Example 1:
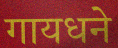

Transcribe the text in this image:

गायधने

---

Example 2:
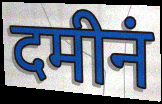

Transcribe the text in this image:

दमीनं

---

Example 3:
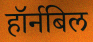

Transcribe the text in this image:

हॉर्नबिल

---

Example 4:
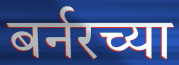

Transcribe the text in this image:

बर्नरच्या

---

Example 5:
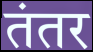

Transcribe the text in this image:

तंतर